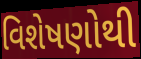
વિશેષણોથી